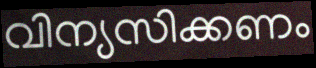
വിന്യസിക്കണം